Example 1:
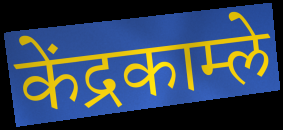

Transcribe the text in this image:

केंद्रकाम्ले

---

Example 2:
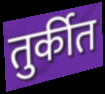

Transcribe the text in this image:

तुर्कीत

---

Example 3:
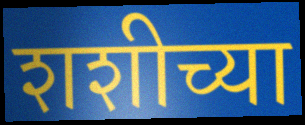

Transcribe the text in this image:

शशीच्या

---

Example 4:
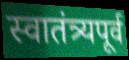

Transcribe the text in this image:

स्वातंत्र्यपूर्व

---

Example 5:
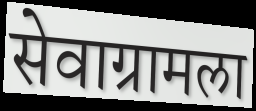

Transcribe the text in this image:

सेवाग्रामला